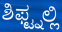
ಶಿಫ್ಟ್ನಲ್ಲಿ